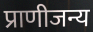
प्राणीजन्य